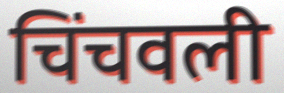
चिंचवली